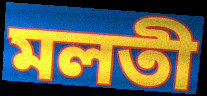
মলতী